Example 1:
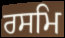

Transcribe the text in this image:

ਰਸਮਿ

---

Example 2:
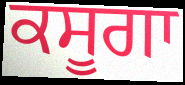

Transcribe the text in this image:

ਕਸੂਗਾ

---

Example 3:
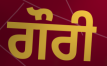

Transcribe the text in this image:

ਗੌਰੀ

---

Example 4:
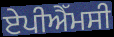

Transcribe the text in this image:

ਏਪੀਐੱਮਸੀ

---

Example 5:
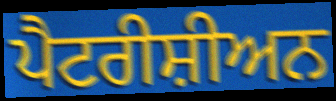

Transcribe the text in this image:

ਪੈਟਰੀਸ਼ੀਅਨ